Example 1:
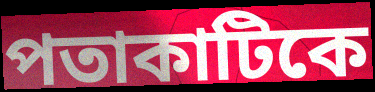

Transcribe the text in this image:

পতাকাটিকে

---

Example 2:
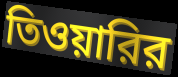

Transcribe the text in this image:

তিওয়ারির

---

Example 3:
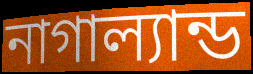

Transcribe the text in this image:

নাগাল্যান্ড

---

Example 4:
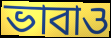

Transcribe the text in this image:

ভাবাও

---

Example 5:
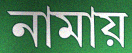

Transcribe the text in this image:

নামায়